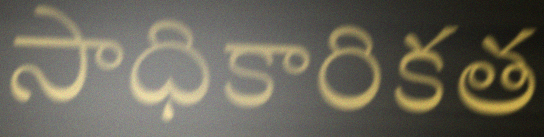
సాధికారికత